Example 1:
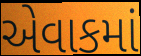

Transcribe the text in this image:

એવાકમાં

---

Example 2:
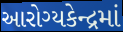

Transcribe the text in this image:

આરોગ્યકેન્દ્રમાં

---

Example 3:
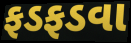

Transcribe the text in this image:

ફડફડવા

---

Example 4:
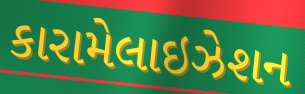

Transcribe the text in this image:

કારામેલાઇઝેશન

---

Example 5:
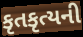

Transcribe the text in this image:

કૃતકૃત્યની